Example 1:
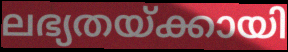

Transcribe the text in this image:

ലഭ്യതയ്ക്കായി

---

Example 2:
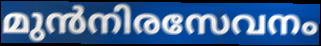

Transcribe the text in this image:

മുൻനിരസേവനം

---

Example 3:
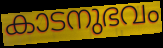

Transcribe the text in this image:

കാടനുഭവം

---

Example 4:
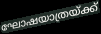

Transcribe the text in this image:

ഘോഷയാത്രയ്ക്ക്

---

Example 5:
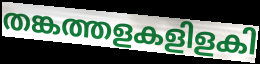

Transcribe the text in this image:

തങ്കത്തളകളിളകി